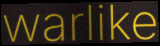
warlike